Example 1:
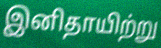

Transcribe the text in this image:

இனிதாயிற்று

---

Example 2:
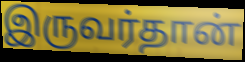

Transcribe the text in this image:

இருவர்தான்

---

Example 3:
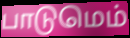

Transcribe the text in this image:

பாடுமெம்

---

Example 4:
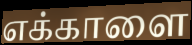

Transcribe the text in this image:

எக்காளை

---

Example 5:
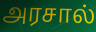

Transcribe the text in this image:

அரசால்